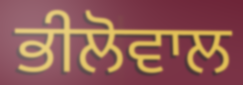
ਭੀਲੋਵਾਲ